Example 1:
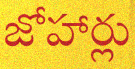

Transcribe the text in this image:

జోహార్లు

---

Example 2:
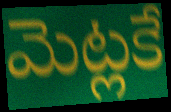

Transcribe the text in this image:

మెట్లకే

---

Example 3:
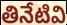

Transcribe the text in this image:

తినేటివి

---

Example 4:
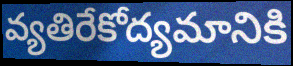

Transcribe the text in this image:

వ్యతిరేకోద్యమానికి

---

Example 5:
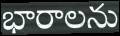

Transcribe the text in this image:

భారాలను